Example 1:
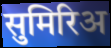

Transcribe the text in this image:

सुमिरिअ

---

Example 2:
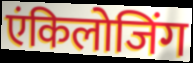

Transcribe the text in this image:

एंकिलोजिंग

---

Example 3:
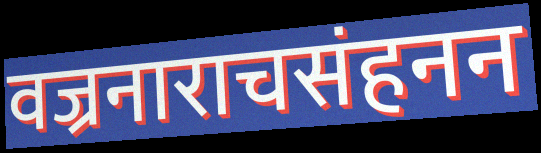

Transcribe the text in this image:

वज्रनाराचसंहनन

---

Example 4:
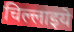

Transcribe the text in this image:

चिल्लाइये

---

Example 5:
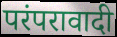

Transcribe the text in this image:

परंपरावादी